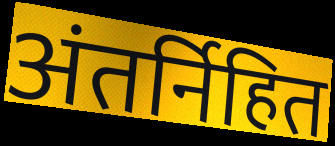
अंतर्निहित